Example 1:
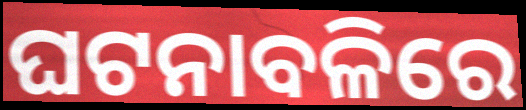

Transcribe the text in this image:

ଘଟନାବଳିରେ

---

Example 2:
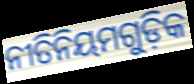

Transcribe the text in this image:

ନୀତିନିୟମଗୁଡ଼ିକ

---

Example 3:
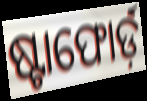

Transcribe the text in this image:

ଷ୍ଟାଫୋର୍ଡ଼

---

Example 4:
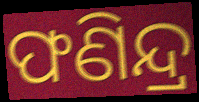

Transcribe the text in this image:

ଫଣିନ୍ଦ୍ର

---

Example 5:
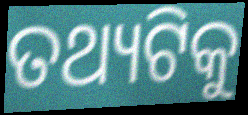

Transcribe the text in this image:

ତଥ୍ୟଟିକୁ